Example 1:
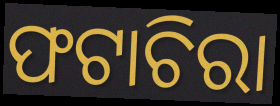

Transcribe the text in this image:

ଫଟାଚିରା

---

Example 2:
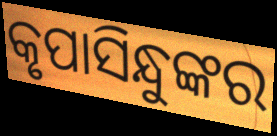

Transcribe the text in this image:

କୃପାସିନ୍ଧୁଙ୍କର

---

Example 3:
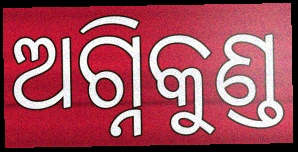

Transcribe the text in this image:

ଅଗ୍ନିକୁଣ୍ଡ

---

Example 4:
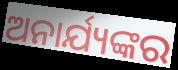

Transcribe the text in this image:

ଅନାର୍ଯ୍ୟଙ୍କର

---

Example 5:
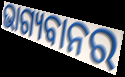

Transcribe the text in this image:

ଭାଗ୍ୟବାନର